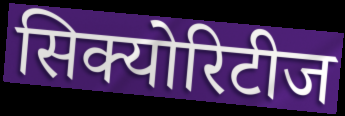
सिक्योरिटीज